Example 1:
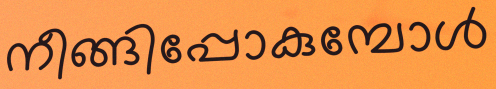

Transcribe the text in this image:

നീങ്ങിപ്പോകുമ്പോൾ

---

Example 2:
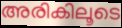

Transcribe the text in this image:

അരികിലൂടെ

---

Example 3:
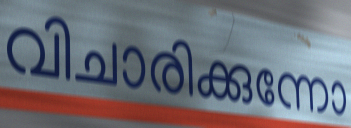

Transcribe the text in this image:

വിചാരിക്കുന്നോ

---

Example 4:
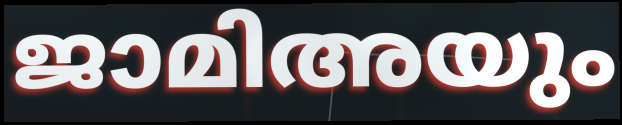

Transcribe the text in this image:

ജാമിഅയും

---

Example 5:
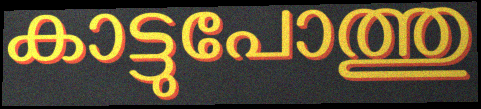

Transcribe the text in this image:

കാട്ടുപോത്തു